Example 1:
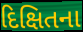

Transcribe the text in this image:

દિક્ષિતના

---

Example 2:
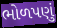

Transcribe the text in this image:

ભોળપણું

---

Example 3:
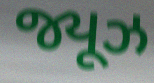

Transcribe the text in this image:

જ્યૂઝ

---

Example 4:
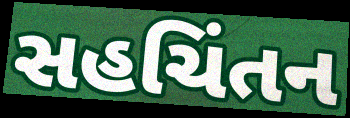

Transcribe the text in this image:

સહચિંતન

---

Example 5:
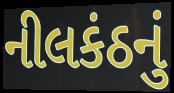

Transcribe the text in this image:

નીલકંઠનું